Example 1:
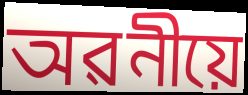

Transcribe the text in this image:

অৱনীয়ে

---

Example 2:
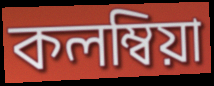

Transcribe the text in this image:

কলম্বিয়া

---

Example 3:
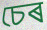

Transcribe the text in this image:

চেৰ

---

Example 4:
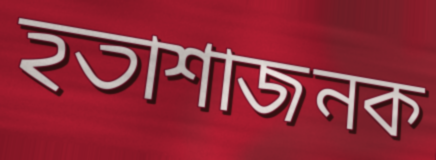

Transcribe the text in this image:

হতাশাজনক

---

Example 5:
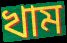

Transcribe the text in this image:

খাম